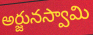
అర్జునస్వామి